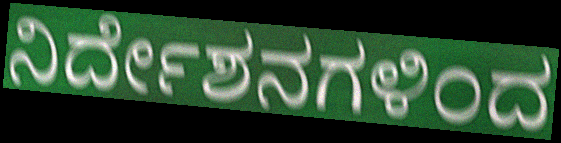
ನಿರ್ದೇಶನಗಳಿಂದ